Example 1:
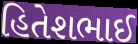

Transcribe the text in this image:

હિતેશભાઈ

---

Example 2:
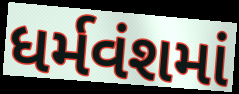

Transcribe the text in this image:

ધર્મવંશમાં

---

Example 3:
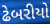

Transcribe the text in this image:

ઢેબરીયો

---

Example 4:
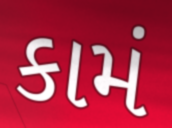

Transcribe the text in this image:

કામં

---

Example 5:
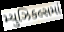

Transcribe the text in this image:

મ્યુઝિકલ્સમાં